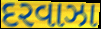
દરવાઝા